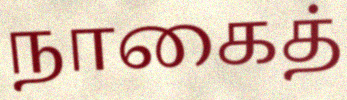
நாகைத்